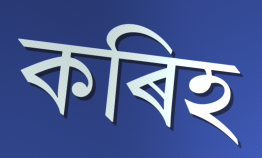
কৰিহ